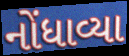
નોંધાવ્યા